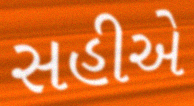
સહીએ